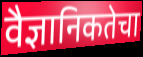
वैज्ञानिकतेचा